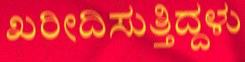
ಖರೀದಿಸುತ್ತಿದ್ದಳು